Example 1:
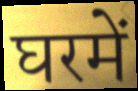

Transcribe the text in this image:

घरमें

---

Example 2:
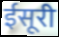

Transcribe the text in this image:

ईसूरी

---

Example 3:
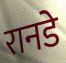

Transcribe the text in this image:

रानडे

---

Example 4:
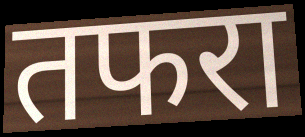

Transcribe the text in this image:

तफरा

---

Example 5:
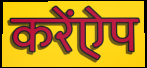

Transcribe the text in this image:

करेंऐप